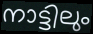
നാട്ടിലും